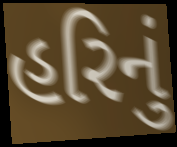
હરિનું